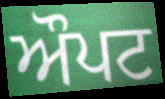
ਔਪਟ